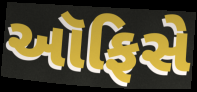
ઑફિસે